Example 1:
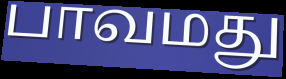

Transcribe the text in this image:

பாவமது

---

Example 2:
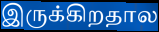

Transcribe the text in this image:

இருக்கிறதால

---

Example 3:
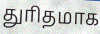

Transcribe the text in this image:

துரிதமாக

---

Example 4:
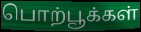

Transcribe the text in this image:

பொற்பூக்கள்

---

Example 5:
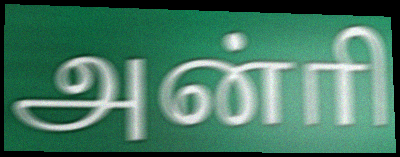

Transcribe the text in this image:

அன்ரி